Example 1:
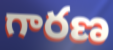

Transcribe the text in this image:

గారణ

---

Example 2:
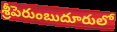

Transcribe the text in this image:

శ్రీపెరుంబుదూరులో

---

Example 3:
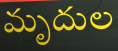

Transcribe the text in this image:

మృదుల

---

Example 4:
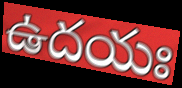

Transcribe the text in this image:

ఉదయః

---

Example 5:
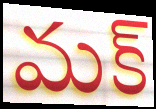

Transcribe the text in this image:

మక్